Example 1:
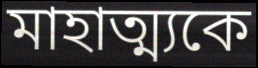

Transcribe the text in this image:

মাহাত্ম্যকে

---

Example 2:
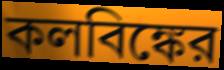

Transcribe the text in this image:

কলবিঙ্কের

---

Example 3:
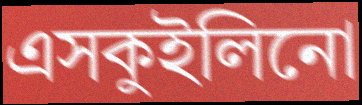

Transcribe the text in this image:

এসকুইলিনো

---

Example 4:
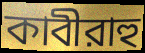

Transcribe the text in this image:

কাবীরাহু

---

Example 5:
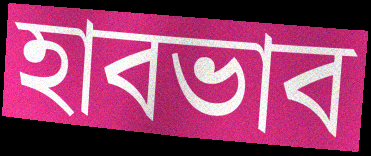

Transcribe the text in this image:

হাবভাব